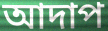
আদাপ